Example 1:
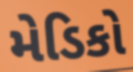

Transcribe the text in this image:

મેડિકો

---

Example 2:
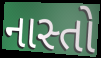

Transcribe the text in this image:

નાસ્તો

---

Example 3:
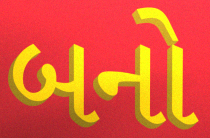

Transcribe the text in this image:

બનો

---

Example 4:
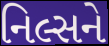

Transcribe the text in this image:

નિલ્સને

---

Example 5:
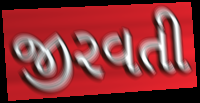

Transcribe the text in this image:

જીરવતી